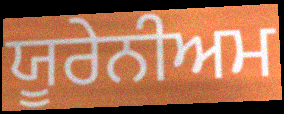
ਯੂਰੇਨੀਅਮ